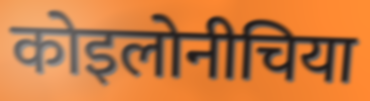
कोइलोनीचिया